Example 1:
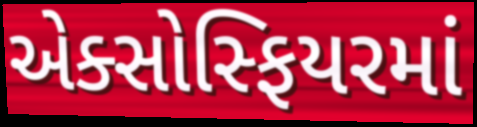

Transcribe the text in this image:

એક્સોસ્ફિયરમાં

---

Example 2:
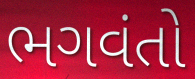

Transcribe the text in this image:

ભગવંતો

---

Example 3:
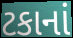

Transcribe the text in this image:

ટકાનાં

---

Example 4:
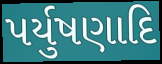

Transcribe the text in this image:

પર્યુષણાદિ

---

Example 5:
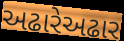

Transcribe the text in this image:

અઢારેઅઢાર